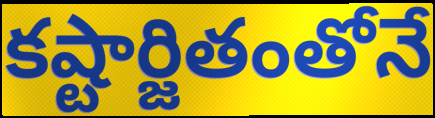
కష్టార్జితంతోనే